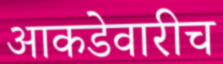
आकडेवारीच